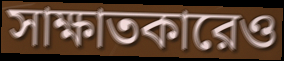
সাক্ষাতকারেও